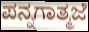
ಪನ್ನಗಾತ್ಮಜೆ